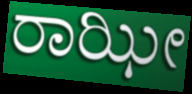
ರಾಝೀ